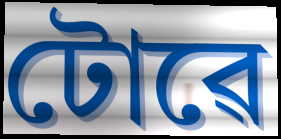
টোৱে